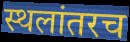
स्थलांतरच